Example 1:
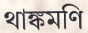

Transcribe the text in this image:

থাঙ্কমণি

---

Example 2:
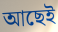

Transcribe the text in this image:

আছেই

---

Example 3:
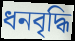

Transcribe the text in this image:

ধনবৃদ্ধি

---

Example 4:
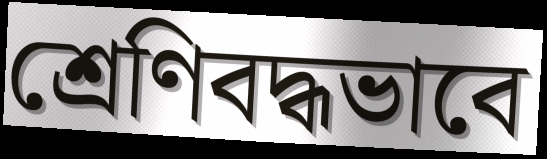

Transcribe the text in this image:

শ্রেণিবদ্ধভাবে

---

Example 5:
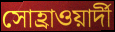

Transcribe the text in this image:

সোহ্রাওয়ার্দী